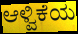
ಆಳ್ವಿಕೆಯ